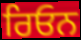
ਰਿਓਨ